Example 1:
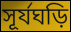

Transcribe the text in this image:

সূর্যঘড়ি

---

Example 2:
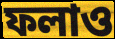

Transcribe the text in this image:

ফলাও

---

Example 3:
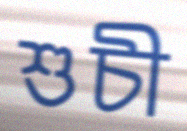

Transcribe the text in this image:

শুচী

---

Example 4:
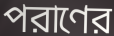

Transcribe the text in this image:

পরাণের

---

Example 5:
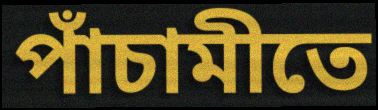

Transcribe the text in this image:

পাঁচামীতে